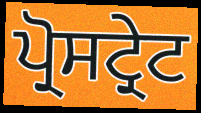
ਪ੍ਰੋਸਟ੍ਰੇਟ